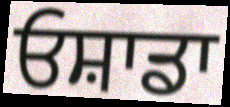
ਓਸ਼ਾਡਾ